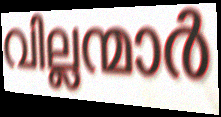
വില്ലന്മാർ